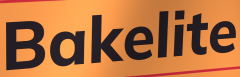
Bakelite